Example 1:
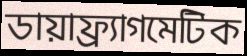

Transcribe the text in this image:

ডায়াফ্র্যাগমেটিক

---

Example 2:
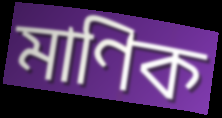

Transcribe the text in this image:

মাণিক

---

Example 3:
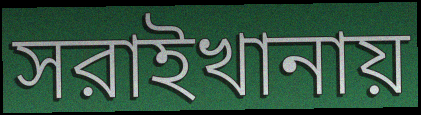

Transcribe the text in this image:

সরাইখানায়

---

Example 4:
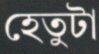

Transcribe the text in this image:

হেতুটা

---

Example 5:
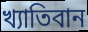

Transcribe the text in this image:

খ্যাতিবান